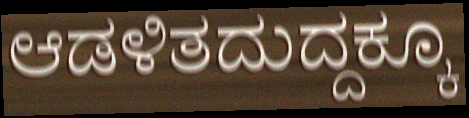
ಆಡಳಿತದುದ್ದಕ್ಕೂ